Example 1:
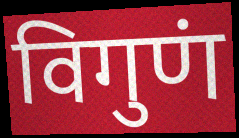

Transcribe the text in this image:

विगुणं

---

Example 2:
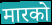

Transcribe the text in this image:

मारको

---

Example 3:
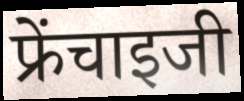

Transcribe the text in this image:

फ्रेंचाइजी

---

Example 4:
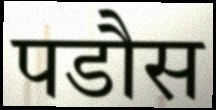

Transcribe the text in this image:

पडौस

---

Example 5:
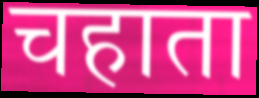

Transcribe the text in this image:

चहाता